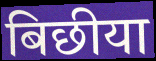
बिछीया